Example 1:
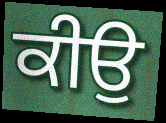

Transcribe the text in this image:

ਕੀਉ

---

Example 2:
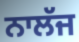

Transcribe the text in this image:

ਨਾਲੱਜ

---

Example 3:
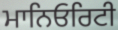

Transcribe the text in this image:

ਮਾਨਿਓਰਿਟੀ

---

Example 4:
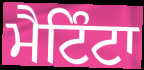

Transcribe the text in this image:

ਮੈਟਿੰਟਾ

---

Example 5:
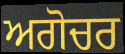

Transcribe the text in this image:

ਅਗੋਚਰ